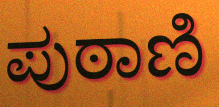
ಪುಠಾಣಿ